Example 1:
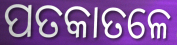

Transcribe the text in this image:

ପତକାତଳେ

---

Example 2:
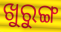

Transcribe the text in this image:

ଖୁରୁଙ୍ଗ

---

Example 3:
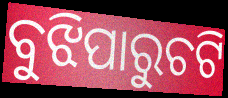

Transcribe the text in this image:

ବୁଝିପାରୁଚଟି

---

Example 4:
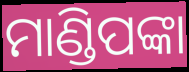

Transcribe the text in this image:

ମାଣ୍ଡିପଙ୍କା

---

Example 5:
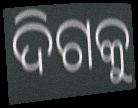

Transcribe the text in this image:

ଦିଗକୁ